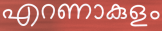
എറണാകുളം